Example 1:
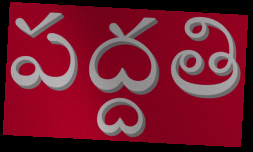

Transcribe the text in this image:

పద్దతి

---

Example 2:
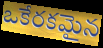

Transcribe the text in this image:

ఒకేరకమైన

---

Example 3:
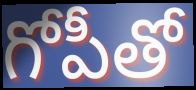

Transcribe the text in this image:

గోపీతో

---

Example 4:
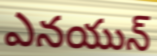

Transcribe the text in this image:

ఎనయున్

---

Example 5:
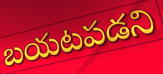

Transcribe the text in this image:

బయటపడని